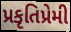
પ્રકૃતિપ્રેમી